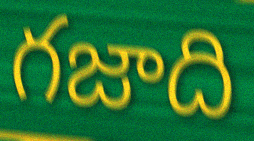
గజాది